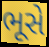
ભૂસે